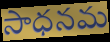
సాధనమ